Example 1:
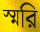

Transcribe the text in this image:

স্মরি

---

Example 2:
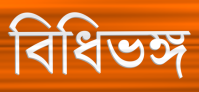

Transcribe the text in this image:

বিধিভঙ্গ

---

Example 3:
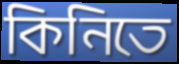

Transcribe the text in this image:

কিনিতে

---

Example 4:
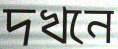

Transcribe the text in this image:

দখনে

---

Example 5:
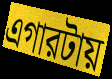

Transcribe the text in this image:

এগারটায়